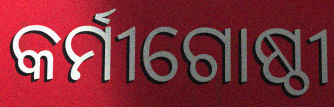
କର୍ମୀଗୋଷ୍ଠୀ